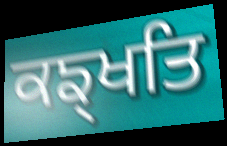
ਕਙ੍ਖਤਿ